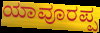
ಯಾವೂರಪ್ಪ